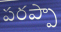
పరప్పా